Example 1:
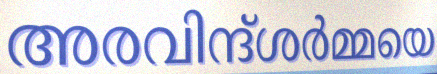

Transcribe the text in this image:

അരവിന്ദ്ശർമ്മയെ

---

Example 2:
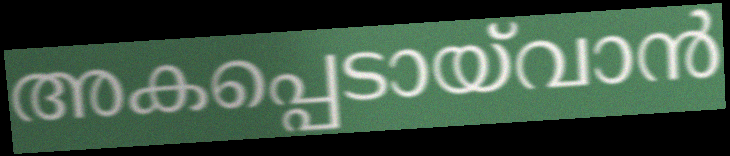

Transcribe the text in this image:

അകപ്പെടായ്‌വാൻ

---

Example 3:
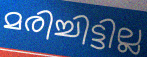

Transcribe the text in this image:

മരിച്ചിട്ടില്ല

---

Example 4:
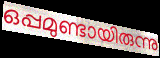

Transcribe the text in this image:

ഒപ്പമുണ്ടായിരുന്നു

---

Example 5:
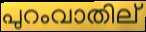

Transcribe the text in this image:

പുറംവാതില്